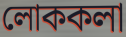
লোককলা